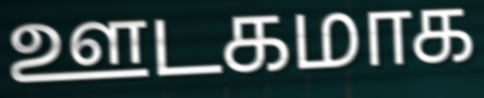
ஊடகமாக